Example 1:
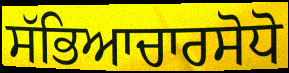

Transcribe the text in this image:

ਸੱਭਿਆਚਾਰਸੋਧੋ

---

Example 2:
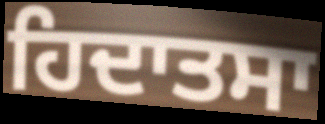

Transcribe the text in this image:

ਹਿਦਾਤਸਾ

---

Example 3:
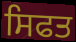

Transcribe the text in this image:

ਸਿਫਤ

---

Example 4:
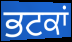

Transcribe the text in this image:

ਭਟਕਾਂ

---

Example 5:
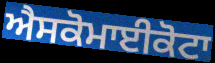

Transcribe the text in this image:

ਐਸਕੋਮਾਈਕੋਟਾ